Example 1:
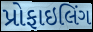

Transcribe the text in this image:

પ્રોફાઇલિંગ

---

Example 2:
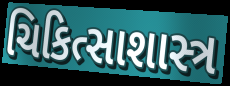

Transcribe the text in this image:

ચિકિત્સાશાસ્ત્ર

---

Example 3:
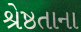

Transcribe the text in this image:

શ્રેષ્ઠતાના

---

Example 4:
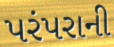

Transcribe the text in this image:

પરંપરાની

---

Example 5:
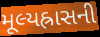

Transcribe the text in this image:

મૂલ્યહ્રાસની